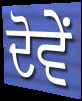
ਦੋਵੇੰ